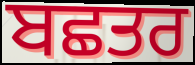
ਬਛਤਰ